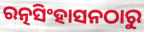
ରତ୍ନସିଂହାସନଠାରୁ